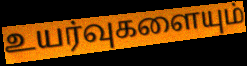
உயர்வுகளையும்